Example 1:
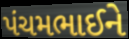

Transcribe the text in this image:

પંચમભાઈને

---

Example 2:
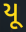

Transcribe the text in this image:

યૂ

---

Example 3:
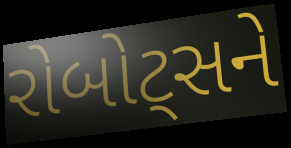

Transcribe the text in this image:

રોબોટ્સને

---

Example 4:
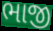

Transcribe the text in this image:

ભાજી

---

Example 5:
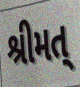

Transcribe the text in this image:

શ્રીમત્